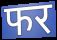
फर